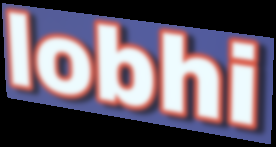
lobhi